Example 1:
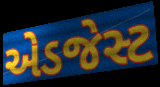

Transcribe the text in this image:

એડજેસ્ટ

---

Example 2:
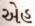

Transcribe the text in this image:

એહ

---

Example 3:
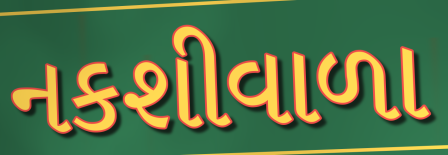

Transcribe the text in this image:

નકશીવાળા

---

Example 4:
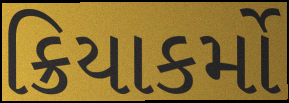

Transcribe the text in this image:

ક્રિયાકર્મો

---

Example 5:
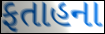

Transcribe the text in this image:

ફતાહના